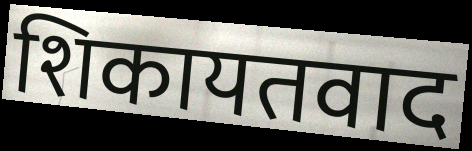
शिकायतवाद